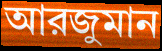
আরজুমান